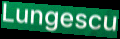
Lungescu